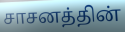
சாசனத்தின்